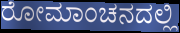
ರೋಮಾಂಚನದಲ್ಲಿ